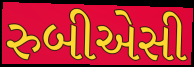
રુબીએસી